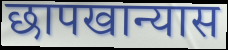
छापखान्यास